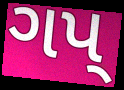
ગપ્